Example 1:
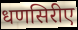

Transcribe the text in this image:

धणसिरीए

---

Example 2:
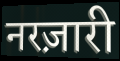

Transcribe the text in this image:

नरज़ारी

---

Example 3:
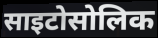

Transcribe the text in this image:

साइटोसोलिक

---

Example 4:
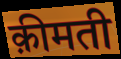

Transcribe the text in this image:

क़ीमती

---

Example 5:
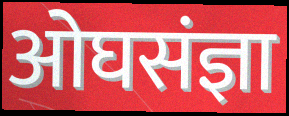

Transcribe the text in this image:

ओघसंज्ञा